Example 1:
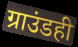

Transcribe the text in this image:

ग्राउंडही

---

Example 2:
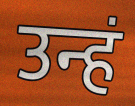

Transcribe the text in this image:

उन्हं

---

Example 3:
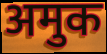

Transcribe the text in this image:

अमुक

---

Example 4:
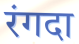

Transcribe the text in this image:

रंगदा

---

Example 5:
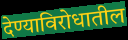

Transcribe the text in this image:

देण्याविरोधातील